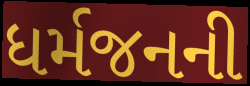
ધર્મજનની